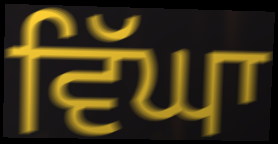
ਵਿੱਘਾ